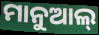
ମାନୁଆଲ୍